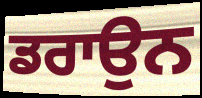
ਡਰਾਉਨ